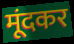
मूंदकर